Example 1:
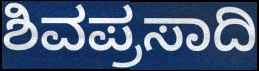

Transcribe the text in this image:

ಶಿವಪ್ರಸಾದಿ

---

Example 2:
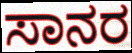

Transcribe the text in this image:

ಸಾನರ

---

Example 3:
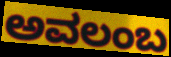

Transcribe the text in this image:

ಅವಲಂಬ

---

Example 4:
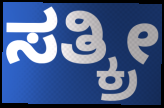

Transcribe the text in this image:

ಸತ್ಕ್ರೀ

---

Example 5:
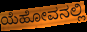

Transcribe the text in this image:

ಯೆಹೋವನಲ್ಲಿ